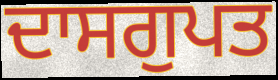
ਦਾਸਗੁਪਤ